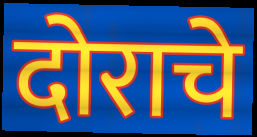
दोराचे